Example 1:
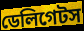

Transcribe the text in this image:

ডেলিগেটস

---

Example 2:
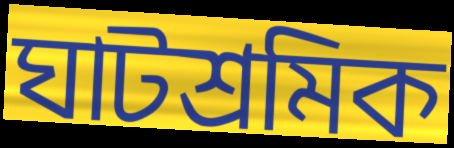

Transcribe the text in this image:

ঘাটশ্রমিক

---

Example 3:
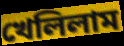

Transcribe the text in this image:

খেলিলাম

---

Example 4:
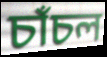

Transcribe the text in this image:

চাঁচল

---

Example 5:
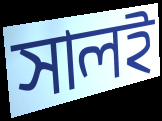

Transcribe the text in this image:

সালই